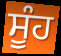
ਸੂੰਹ